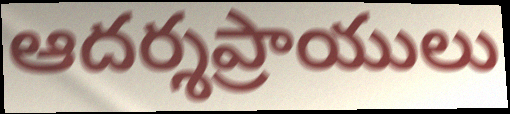
ఆదర్శప్రాయులు